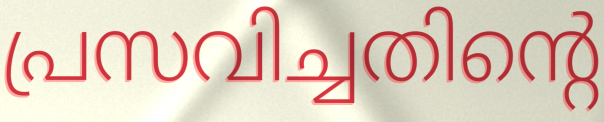
പ്രസവിച്ചതിന്റെ